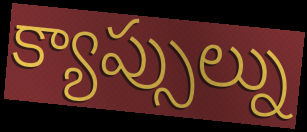
క్యాప్సుల్ను